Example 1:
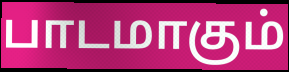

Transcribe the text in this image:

பாடமாகும்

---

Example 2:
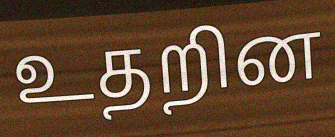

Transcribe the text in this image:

உதறின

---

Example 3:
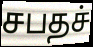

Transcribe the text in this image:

சபதச்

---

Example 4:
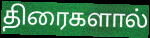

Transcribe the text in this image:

திரைகளால்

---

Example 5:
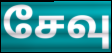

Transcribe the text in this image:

சேவு